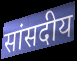
सांसदीय